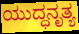
ಯುದ್ಧನೃತ್ಯ